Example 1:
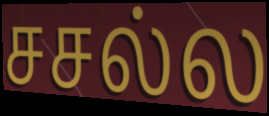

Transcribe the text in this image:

சசல்ல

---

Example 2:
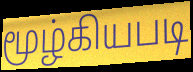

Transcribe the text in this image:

மூழ்கியபடி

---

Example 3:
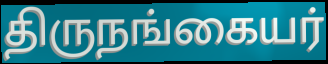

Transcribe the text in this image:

திருநங்கையர்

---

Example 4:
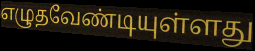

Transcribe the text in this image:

எழுதவேண்டியுள்ளது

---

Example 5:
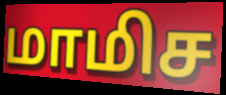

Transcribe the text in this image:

மாமிச